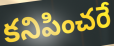
కనిపించరే